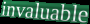
invaluable